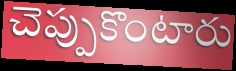
చెప్పుకొంటారు